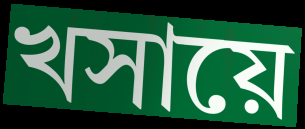
খসায়ে